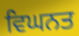
ਵਿਘਨਤ